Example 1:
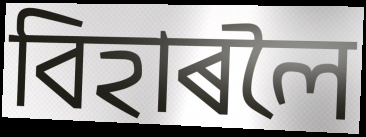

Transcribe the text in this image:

বিহাৰলৈ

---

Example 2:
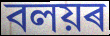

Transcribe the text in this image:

বলয়ৰ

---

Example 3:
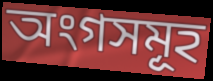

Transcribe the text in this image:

অংগসমূহ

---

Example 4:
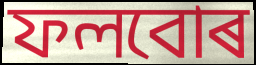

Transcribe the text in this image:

ফলবোৰ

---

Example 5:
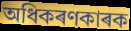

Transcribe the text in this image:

অধিকৰণকাৰক